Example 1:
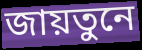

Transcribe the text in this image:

জায়তুনে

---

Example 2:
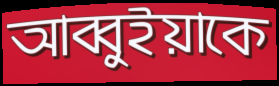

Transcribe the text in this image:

আব্বুইয়াকে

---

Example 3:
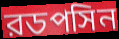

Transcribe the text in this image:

রডপসিন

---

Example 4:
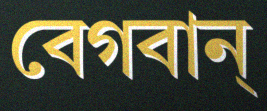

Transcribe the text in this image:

বেগবান্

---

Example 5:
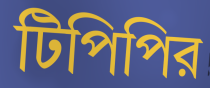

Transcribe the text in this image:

টিপিপির